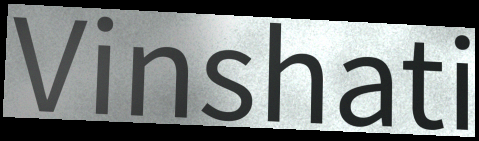
Vinshati